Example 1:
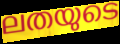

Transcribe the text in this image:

ലതയുടെ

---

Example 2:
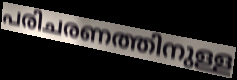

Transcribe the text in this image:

പരിചരണത്തിനുള്ള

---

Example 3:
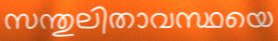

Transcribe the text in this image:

സന്തുലിതാവസ്ഥയെ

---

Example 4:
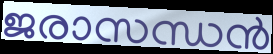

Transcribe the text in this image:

ജരാസന്ധൻ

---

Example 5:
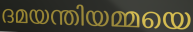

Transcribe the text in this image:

ദമയന്തിയമ്മയെ